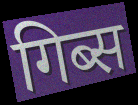
गिब्स